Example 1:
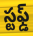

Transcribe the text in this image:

స్టఫ్డ్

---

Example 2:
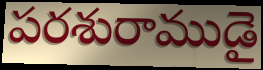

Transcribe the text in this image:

పరశురాముడై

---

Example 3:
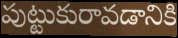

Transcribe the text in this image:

పుట్టుకురావడానికి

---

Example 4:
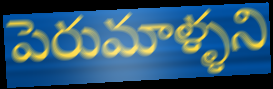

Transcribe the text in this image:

పెరుమాళ్ళని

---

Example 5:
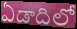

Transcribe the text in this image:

ఏడాదిలో